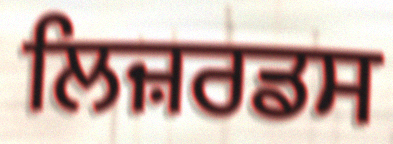
ਲਿਜ਼ਰਡਸ